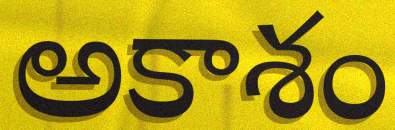
అకాశం